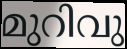
മുറിവു